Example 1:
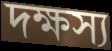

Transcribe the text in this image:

দক্ষস্য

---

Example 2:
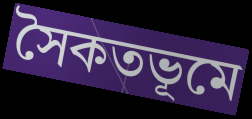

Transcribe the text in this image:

সৈকতভূমে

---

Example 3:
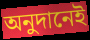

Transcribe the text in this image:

অনুদানেই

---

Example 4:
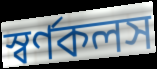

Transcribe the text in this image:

স্বর্ণকলস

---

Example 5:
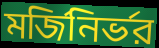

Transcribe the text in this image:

মর্জিনির্ভর